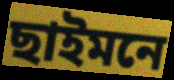
ছাইমনে